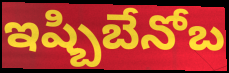
ఇష్బిబేనోబ